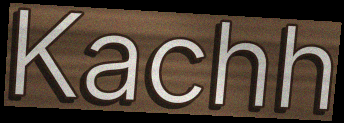
Kachh